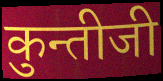
कुन्तीजी